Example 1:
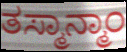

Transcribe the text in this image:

ತಸ್ಮಾನ್ಮಾಂ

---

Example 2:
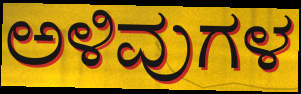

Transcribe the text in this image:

ಅಳಿವುಗಳ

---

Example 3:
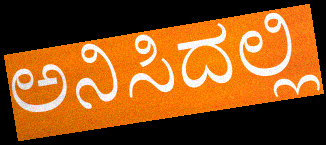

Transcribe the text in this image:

ಅನಿಸಿದಲ್ಲಿ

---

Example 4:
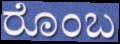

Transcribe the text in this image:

ರೊಂಬ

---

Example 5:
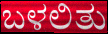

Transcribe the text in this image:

ಬಳಲಿತು